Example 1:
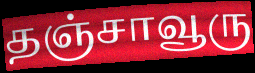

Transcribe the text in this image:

தஞ்சாவூரு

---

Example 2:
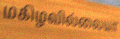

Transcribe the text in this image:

மகிழவில்லையா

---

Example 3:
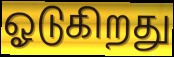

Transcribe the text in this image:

ஓடுகிறது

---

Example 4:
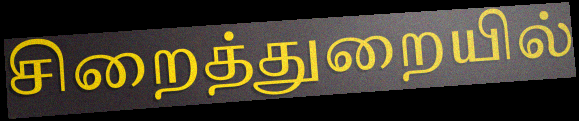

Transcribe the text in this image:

சிறைத்துறையில்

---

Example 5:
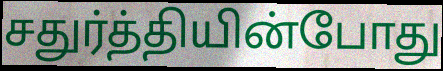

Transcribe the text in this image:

சதுர்த்தியின்போது